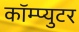
कॉम्प्युटर